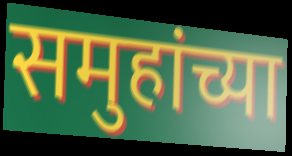
समुहांच्या